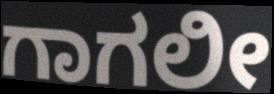
ಗಾಗಲೀ